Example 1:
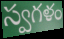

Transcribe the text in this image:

స్వగళం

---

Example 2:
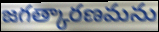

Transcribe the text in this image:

జగత్కారణమను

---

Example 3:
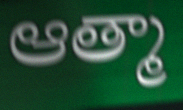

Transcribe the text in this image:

ఆత్మా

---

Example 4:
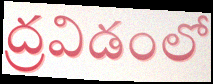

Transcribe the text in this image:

ద్రవిడంలో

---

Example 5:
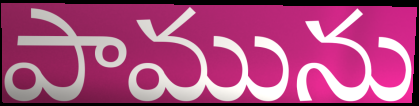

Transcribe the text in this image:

పామును